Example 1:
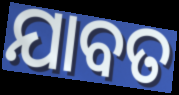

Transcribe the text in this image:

ଯାବତ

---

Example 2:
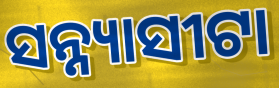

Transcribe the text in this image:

ସନ୍ନ୍ୟାସୀଟା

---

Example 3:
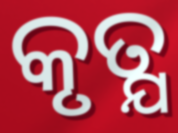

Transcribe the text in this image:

କୃତ୍ଯ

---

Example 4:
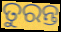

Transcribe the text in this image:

ତୁରନ୍ତ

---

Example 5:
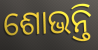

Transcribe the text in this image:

ଶୋଭନ୍ତି